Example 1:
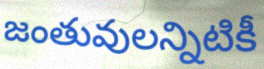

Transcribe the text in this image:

జంతువులన్నిటికీ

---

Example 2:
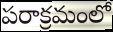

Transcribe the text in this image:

పరాక్రమంలో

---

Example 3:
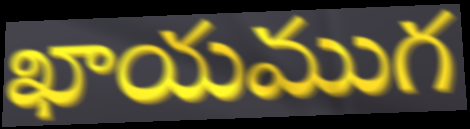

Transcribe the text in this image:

ఖాయముగ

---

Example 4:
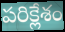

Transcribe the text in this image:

పరిక్లేశం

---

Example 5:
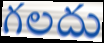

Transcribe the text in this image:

గలదు